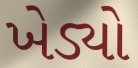
ખેડ્યો